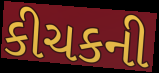
કીચકની